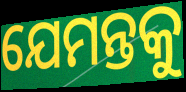
ଯେମନ୍ତକୁ